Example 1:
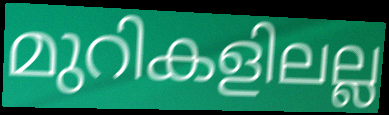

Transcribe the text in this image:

മുറികളിലല്ല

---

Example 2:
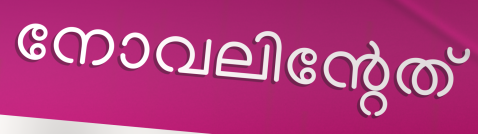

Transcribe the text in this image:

നോവലിന്റേത്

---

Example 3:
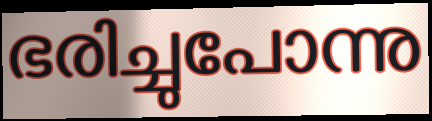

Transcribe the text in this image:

ഭരിച്ചുപോന്നു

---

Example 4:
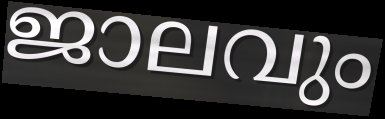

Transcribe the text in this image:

ജാലവും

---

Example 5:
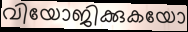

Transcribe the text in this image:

വിയോജിക്കുകയോ